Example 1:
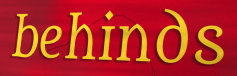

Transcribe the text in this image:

behinds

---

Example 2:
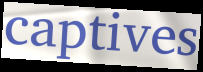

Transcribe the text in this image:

captives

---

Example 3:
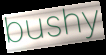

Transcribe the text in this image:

bushy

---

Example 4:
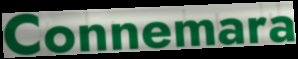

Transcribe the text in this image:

Connemara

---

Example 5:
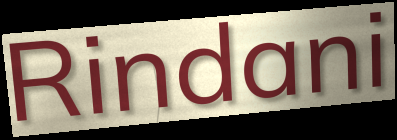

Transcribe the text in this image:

Rindani